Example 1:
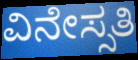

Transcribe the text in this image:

ವಿನೇಸ್ಸತಿ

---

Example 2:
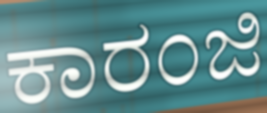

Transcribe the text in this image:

ಕಾರಂಜಿ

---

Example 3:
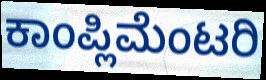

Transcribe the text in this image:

ಕಾಂಪ್ಲಿಮೆಂಟರಿ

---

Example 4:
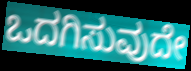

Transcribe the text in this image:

ಒದಗಿಸುವುದೇ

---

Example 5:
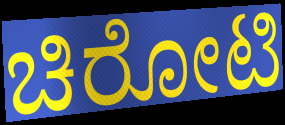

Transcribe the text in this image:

ಚಿರೋಟಿ